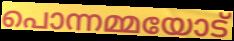
പൊന്നമ്മയോട്